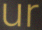
ur